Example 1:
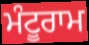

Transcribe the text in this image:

ਮੰਟੂਰਾਮ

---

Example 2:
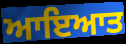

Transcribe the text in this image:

ਆਇਆਤ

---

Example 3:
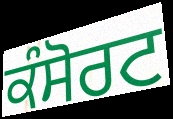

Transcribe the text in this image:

ਕੰਸੋਰਟ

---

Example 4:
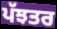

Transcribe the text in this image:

ਪੱਝਤਰ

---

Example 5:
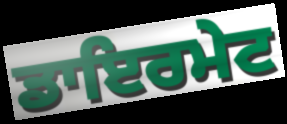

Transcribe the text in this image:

ਡਾਇਰਮੇਟ